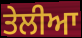
ਤੇਲੀਆ